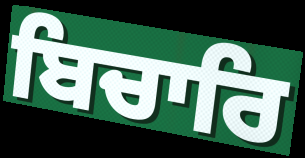
ਬਿਚਾਰਿ